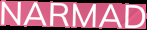
NARMAD